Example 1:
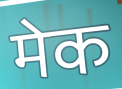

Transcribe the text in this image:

मेक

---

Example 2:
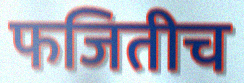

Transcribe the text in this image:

फजितीच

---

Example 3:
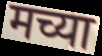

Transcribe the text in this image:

मच्या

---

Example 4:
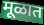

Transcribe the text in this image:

मूळात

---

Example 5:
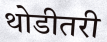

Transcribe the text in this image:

थोडीतरी